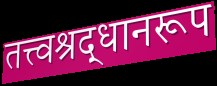
तत्त्वश्रद्धानरूप